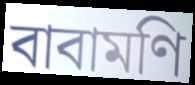
বাবামণি